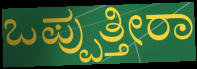
ಒಪ್ಪುತ್ತೀರಾ